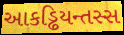
આકડ્ઢિયન્તસ્સ